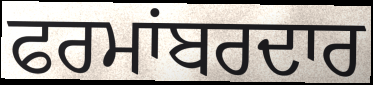
ਫਰਮਾਂਬਰਦਾਰ